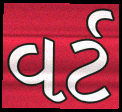
વર્ટ